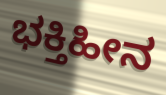
ಭಕ್ತಿಹೀನ